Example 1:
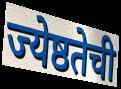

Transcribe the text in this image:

ज्येष्ठतेची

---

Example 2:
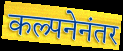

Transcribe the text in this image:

कल्पनेनंतर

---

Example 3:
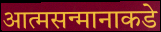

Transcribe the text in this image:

आत्मसन्मानाकडे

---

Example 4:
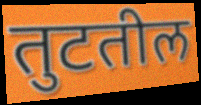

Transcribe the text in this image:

तुटतील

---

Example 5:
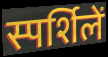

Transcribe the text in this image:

स्पर्शिलें